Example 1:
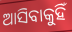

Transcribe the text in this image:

ଆସିବାକୁହିଁ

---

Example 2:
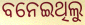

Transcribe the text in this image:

ବନେଇଥିଲୁ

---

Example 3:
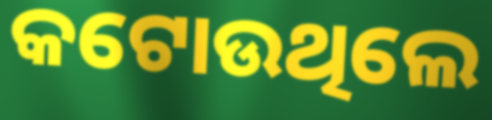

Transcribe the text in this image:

କଟୋଉଥିଲେ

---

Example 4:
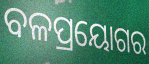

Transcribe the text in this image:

ବଳପ୍ରୟୋଗର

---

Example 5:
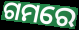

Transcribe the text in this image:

ଗମରେ